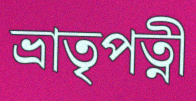
ভ্রাতৃপত্নী